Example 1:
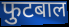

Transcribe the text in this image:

फुटबाल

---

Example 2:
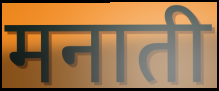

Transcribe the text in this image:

मनाती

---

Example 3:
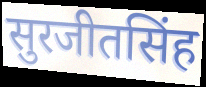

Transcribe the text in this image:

सुरजीतसिंह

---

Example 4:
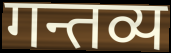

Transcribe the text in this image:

गन्तव्य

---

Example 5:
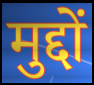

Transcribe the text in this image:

मुद्दों